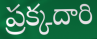
ప్రక్కదారి